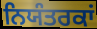
ਨਿਯੰਤਰਕਾਂ